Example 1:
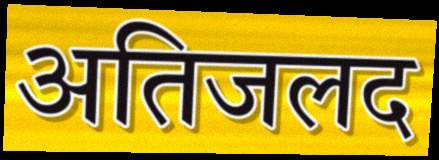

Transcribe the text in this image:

अतिजलद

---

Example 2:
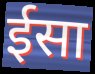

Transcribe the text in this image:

ईसा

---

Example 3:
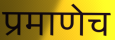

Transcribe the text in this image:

प्रमाणेच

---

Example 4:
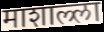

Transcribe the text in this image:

माशाल्ला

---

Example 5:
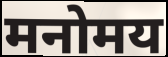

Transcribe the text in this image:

मनोमय